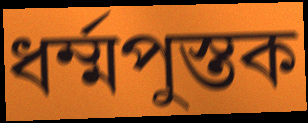
ধর্ম্মপুস্তক